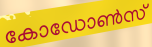
കോഡോൺസ്